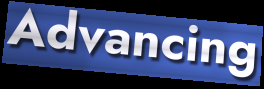
Advancing